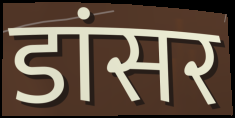
डांसर